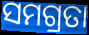
ସମଗ୍ରତା